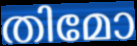
തിമോ